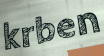
krben